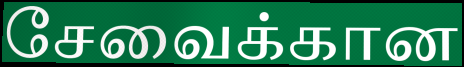
சேவைக்கான